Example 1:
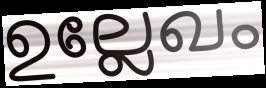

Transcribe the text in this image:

ഉല്ലേഖം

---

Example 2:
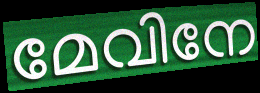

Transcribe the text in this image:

മേവിനേ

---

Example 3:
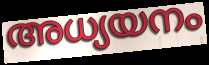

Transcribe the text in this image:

അധ്യയനം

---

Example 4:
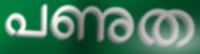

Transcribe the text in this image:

പണുത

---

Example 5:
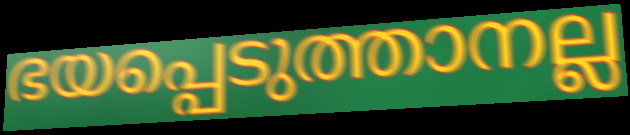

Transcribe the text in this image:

ഭയപ്പെടുത്താനല്ല